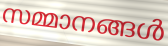
സമ്മാനങ്ങൾ